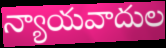
న్యాయవాదుల